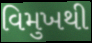
વિમુખથી